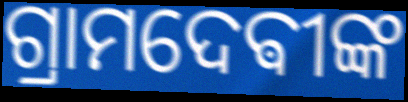
ଗ୍ରାମଦେଵୀଙ୍କ